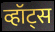
व्हॉट्स